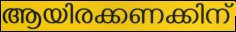
ആയിരക്കണക്കിന്